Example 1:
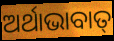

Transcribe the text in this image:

ଅର୍ଥାଭାବାତ୍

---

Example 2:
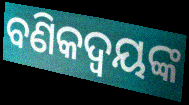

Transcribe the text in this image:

ବଣିକଦ୍ଵୟଙ୍କ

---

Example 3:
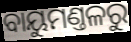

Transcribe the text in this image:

ବାୟୁମଣ୍ତଳରୁ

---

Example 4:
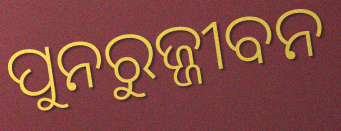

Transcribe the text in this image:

ପୁନରୁଜ୍ଜୀବନ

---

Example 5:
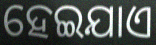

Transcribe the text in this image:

ହେଇଯାଏ